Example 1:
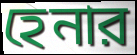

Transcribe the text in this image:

হেনার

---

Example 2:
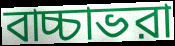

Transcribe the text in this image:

বাচ্চাভরা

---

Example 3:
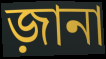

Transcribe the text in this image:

জ়ানা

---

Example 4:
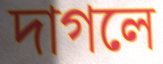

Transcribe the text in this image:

দাগলে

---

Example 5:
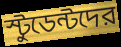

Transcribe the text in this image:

স্টুডেন্টদের